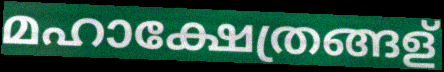
മഹാക്ഷേത്രങ്ങള്